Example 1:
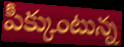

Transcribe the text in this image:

పీక్కుంటున్న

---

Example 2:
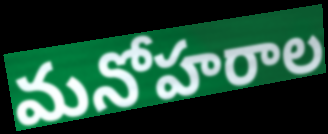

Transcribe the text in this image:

మనోహరాల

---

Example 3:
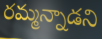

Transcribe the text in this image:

రమ్మన్నాడని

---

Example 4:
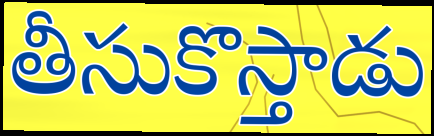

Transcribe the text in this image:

తీసుకొస్తాడు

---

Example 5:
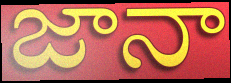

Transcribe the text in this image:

జానా